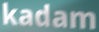
kadam